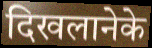
दिखलानेके